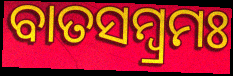
ବାତସମ୍ବ୍ରମଃ